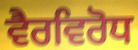
ਵੈਰਵਿਰੋਧ